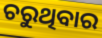
ଚରୁଥିବାର